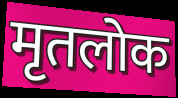
मृतलोक